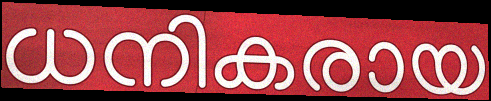
ധനികരായ